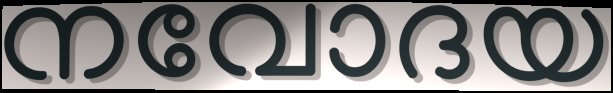
നവോദയ